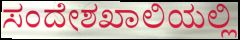
ಸಂದೇಶಖಾಲಿಯಲ್ಲಿ